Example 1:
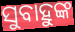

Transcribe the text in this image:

ସୁବାହୁଙ୍କ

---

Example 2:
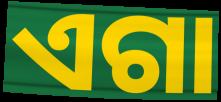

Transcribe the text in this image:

ଏଗା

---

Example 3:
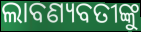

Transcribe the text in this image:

ଲାବଣ୍ୟବତୀଙ୍କୁ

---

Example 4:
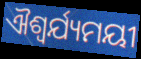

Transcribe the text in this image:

ଐଶ୍ୱର୍ଯ୍ୟମୟୀ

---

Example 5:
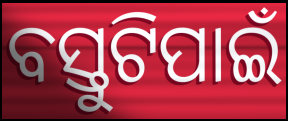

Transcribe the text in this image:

ବସ୍ତୁଟିପାଇଁ